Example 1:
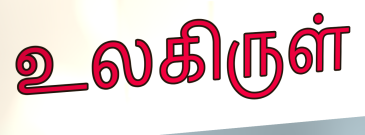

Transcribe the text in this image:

உலகிருள்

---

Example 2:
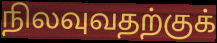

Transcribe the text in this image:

நிலவுவதற்குக்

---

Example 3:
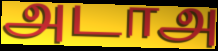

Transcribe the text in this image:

அடாஅ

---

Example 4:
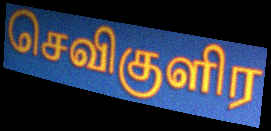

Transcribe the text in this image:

செவிகுளிர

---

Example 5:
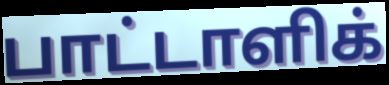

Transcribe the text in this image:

பாட்டாளிக்